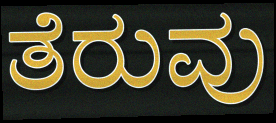
ತೆರುವು